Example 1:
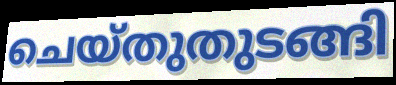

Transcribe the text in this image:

ചെയ്തുതുടങ്ങി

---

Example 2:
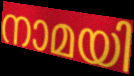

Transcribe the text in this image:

നാമയി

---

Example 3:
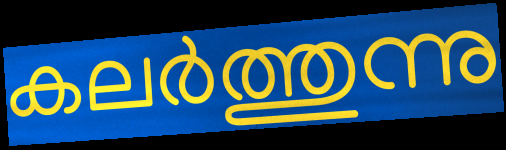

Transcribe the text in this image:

കലർത്തുന്നു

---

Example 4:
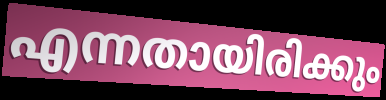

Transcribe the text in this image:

എന്നതായിരിക്കും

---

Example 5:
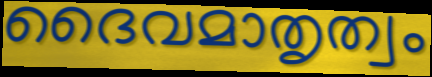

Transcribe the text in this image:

ദൈവമാതൃത്വം